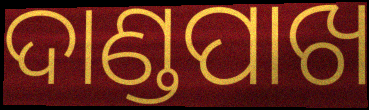
ଦାଣ୍ଡପାଖ